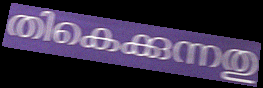
തികെക്കുന്നതു